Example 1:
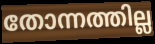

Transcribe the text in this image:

തോന്നത്തില്ല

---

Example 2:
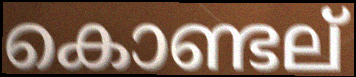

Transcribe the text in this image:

കൊണ്ടല്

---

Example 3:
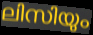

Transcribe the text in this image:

ലിസിയും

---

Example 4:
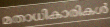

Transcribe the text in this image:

മതാധികാരികൾ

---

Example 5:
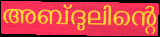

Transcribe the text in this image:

അബ്ദുലിന്റെ